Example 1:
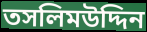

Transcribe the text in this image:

তসলিমউদ্দিন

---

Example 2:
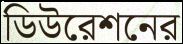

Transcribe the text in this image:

ডিউরেশনের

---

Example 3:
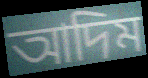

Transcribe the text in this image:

আদিম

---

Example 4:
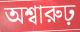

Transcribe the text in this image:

অশ্বারুঢ়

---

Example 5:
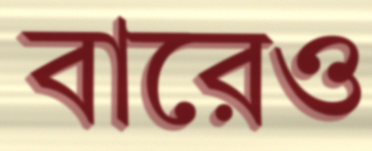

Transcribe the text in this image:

বারেও